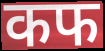
कफ